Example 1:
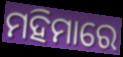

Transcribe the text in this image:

ମହିମାରେ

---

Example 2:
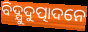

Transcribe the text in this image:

ବିଦ୍ଯୁଦୁତ୍ପାଦନେ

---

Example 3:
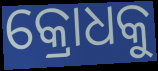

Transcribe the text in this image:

କ୍ରୋଧକୁ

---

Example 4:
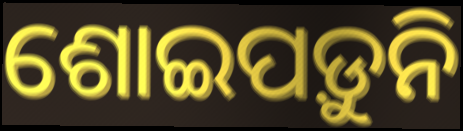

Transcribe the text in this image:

ଶୋଇପଡ଼ୁନି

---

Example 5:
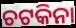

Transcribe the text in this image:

ଚଟକିନା